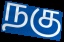
நகு